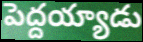
పెద్దయ్యాడు